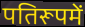
पतिरूपमें